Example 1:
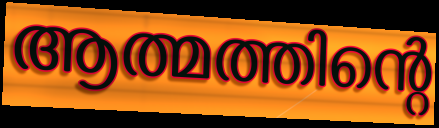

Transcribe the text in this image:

ആത്മത്തിന്റെ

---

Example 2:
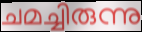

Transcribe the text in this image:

ചമച്ചിരുന്നു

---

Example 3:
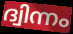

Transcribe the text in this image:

ദ്വിന്നം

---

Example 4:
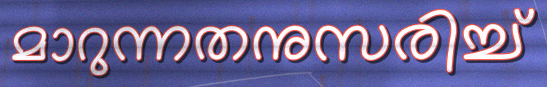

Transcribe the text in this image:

മാറുന്നതനുസരിച്ച്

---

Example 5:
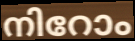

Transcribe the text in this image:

നിറോം